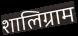
शालिग्राम